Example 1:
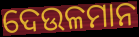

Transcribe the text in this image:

ଦେଉଳମାନ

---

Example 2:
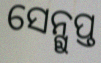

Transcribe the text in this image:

ସେନ୍ଗୁପ୍ତ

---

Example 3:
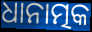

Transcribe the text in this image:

ଧାନାତ୍ମକ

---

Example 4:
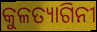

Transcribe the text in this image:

କୁଳତ୍ୟାଗିନୀ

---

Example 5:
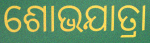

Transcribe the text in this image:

ଶୋଭଯାତ୍ରା